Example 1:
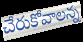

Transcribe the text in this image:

చేరుకోవాలన్న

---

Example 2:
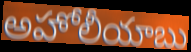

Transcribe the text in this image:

అహోలీయాబు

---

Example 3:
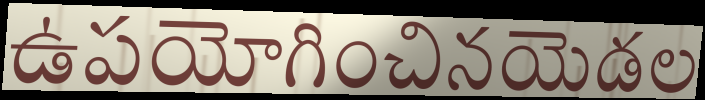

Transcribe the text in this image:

ఉపయోగించినయెడల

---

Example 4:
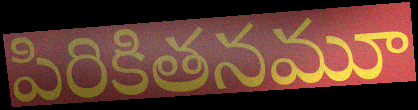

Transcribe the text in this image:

పిరికితనమూ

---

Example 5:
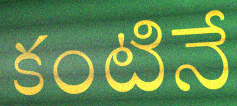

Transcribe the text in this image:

కంటినే